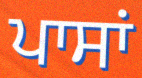
ਪਾਸਾਂ